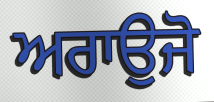
ਅਰਾਉਜੋ